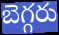
బెగ్గరు